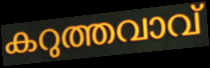
കറുത്തവാവ്